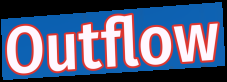
Outflow